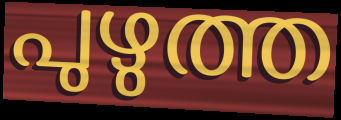
പുഴുത്ത